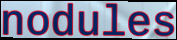
nodules